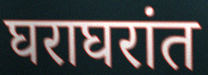
घराघरांत